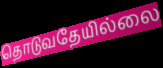
தொடுவதேயில்லை